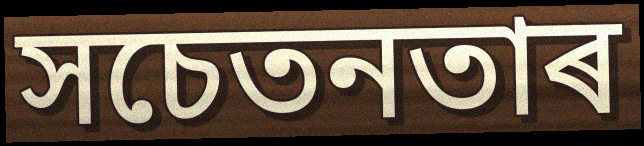
সচেতনতাৰ